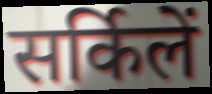
सर्किलें